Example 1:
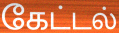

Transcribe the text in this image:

கேட்டல்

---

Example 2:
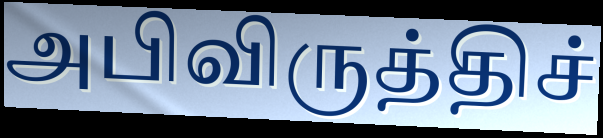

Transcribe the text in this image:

அபிவிருத்திச்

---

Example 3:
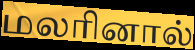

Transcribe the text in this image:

மலரினால்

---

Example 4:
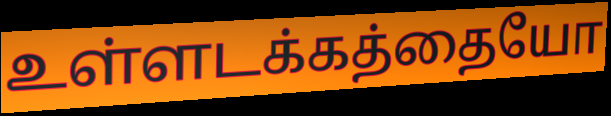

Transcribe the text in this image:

உள்ளடக்கத்தையோ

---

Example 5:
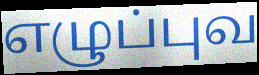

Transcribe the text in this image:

எழுப்புவ